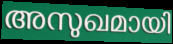
അസുഖമായി